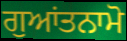
ਗੁਆਂਤਨਾਮੋ